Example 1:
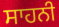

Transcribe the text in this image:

ਸਾਹਨੀ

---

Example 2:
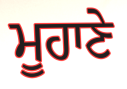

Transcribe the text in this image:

ਮੂਹਾਣੇ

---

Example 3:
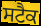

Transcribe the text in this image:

ਸਟੈਕ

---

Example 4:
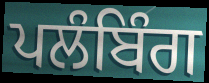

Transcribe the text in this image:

ਪਲੰਬਿੰਗ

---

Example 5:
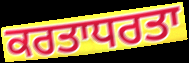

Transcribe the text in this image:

ਕਰਤਾਧਰਤਾ